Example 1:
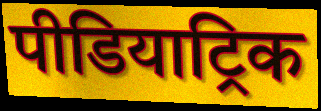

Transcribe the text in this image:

पीडियाट्रिक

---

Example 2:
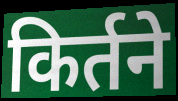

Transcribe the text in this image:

किर्तने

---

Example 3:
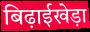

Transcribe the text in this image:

बिढ़ाईखेड़ा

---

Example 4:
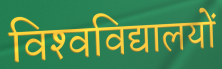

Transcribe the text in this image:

विश्‍वविद्यालयों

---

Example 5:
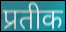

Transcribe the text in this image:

प्रतीक